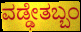
ವಡ್ಢೇತಬ್ಬಂ